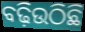
ବଢ଼ିଉଠିଛି